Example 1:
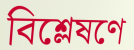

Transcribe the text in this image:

বিশ্লেষণে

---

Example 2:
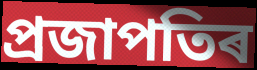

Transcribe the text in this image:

প্ৰজাপতিৰ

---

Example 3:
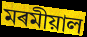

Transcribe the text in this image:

মৰমীয়াল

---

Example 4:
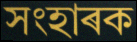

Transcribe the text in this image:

সংহাৰক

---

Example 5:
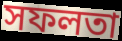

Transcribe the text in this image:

সফলতা